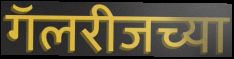
गॅलरीजच्या